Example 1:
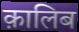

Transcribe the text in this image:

क़ालिब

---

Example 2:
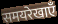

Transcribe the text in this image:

समयरेखाएँ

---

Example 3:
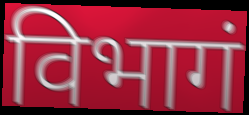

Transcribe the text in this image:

विभागं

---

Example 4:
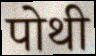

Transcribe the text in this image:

पोथी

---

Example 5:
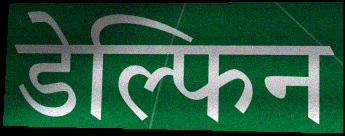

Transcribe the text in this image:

डेल्फिन